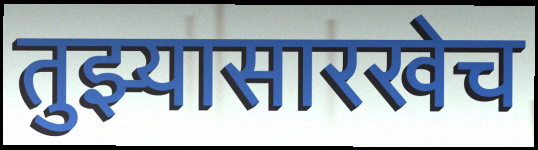
तुझ्यासारखेच